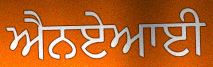
ਐਨਏਆਈ